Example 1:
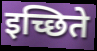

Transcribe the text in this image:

इच्छिते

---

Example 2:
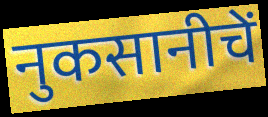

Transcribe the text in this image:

नुकसानीचें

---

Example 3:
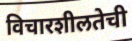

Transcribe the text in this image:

विचारशीलतेची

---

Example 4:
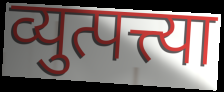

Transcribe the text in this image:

व्युत्पत्त्या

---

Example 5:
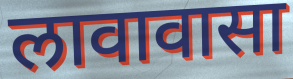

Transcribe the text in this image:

लावावासा